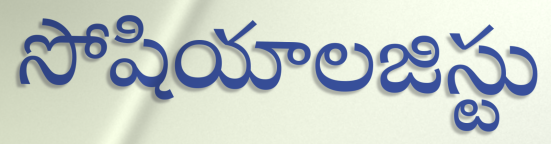
సోషియాలజిస్టు